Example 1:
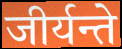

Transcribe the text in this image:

जीर्यन्ते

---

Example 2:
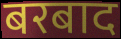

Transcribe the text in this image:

बरबाद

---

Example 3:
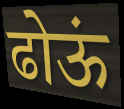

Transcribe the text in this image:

ढोऊं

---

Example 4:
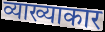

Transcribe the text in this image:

व्याख्याकार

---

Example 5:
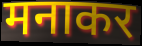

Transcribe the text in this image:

मनाकर